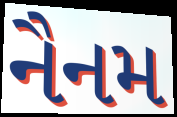
નૈનમ